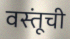
वस्तूंची